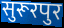
सुरूरपुर